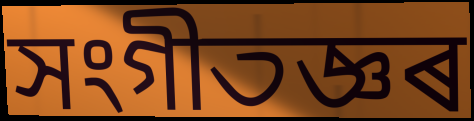
সংগীতজ্ঞৰ